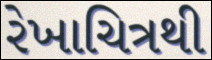
રેખાચિત્રથી